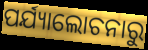
ପର୍ଯ୍ୟାଲୋଚନାରୁ